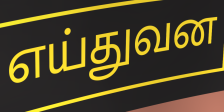
எய்துவன